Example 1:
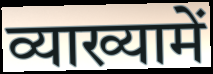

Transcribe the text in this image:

व्याख्यामें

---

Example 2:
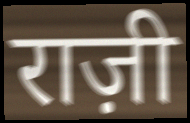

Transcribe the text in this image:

राज़ी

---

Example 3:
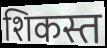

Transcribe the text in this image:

शिकस्त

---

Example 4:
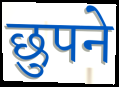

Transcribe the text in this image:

छुपने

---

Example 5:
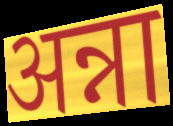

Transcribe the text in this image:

अन्ना